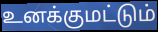
உனக்குமட்டும்